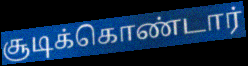
சூடிக்கொண்டார்